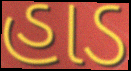
હાડ